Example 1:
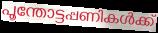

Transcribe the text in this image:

പൂന്തോട്ടപ്പണികൾക്ക്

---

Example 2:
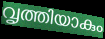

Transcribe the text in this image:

വൃത്തിയാകും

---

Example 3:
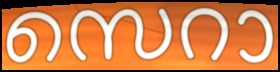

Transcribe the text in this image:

സെറാ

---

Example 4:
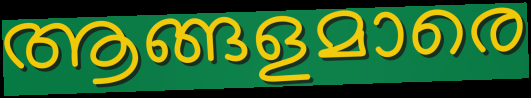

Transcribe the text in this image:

ആങ്ങളമാരെ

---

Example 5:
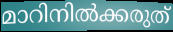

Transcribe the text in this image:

മാറിനിൽക്കരുത്